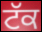
ਟੱਕ